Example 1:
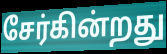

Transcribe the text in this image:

சேர்கின்றது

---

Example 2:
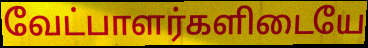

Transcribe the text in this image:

வேட்பாளர்களிடையே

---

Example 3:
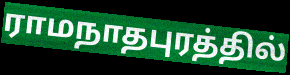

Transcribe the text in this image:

ராமநாதபுரத்தில்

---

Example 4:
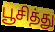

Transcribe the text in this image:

பூசித்து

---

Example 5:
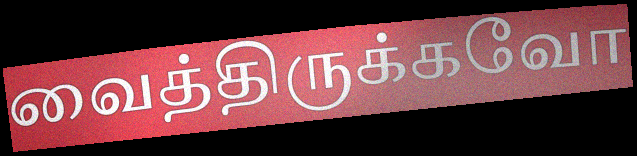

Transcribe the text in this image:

வைத்திருக்கவோ